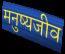
मनुष्यजीव